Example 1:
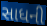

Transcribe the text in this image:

સાધની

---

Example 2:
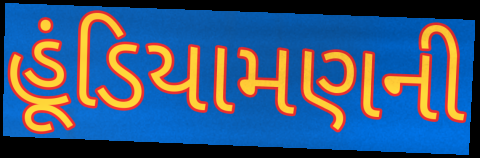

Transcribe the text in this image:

હૂંડિયામણની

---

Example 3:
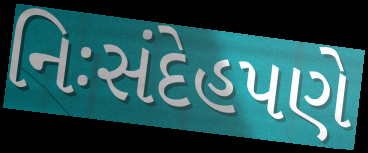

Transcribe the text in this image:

નિઃસંદેહપણે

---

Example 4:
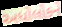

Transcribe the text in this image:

અધોલોકને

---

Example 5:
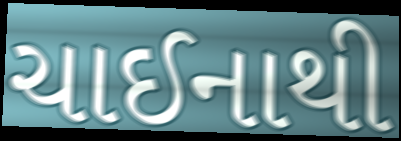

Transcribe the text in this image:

ચાઈનાથી